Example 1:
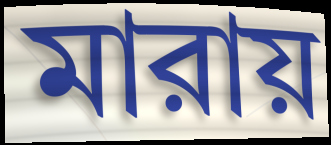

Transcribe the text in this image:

মারায়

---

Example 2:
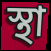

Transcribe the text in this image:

স্থা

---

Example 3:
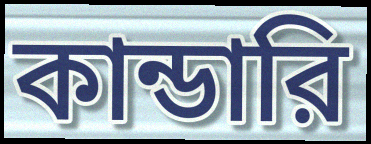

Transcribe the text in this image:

কান্ডারি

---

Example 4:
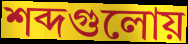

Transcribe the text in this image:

শব্দগুলোয়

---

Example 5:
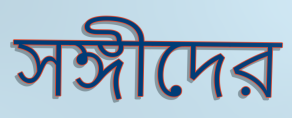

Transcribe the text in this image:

সঙ্গীদের